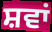
ਸ਼ਵਾਂ